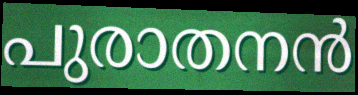
പുരാതനൻ